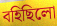
বহিছিলো